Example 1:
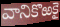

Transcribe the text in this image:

వానికొఱకై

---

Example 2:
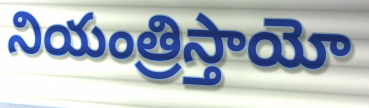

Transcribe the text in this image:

నియంత్రిస్తాయో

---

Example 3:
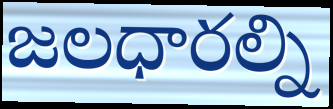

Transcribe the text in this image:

జలధారల్ని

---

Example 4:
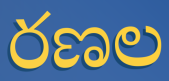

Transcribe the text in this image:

రణల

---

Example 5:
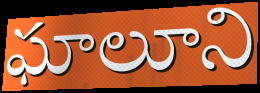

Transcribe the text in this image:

ఘాలూని